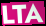
LTA